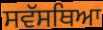
ਸਵੱਸਥਿਆ